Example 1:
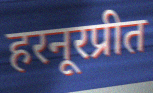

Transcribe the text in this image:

हरनूरप्रीत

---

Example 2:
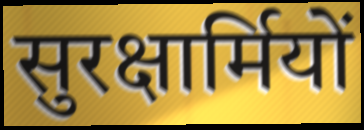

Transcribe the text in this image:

सुरक्षार्मियों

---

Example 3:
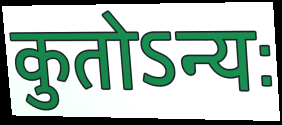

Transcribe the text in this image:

कुतोऽन्यः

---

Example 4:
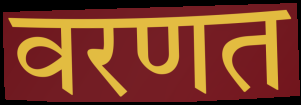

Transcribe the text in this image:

वरणत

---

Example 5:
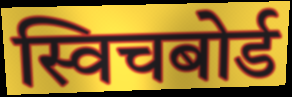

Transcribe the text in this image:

स्विचबोर्ड